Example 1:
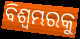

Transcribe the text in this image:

ବିଶ୍ୱମ୍ଭରକୁ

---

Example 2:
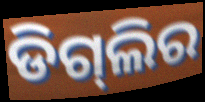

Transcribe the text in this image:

ଡିଗ୍‌ଲିର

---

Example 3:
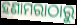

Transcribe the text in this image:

ହଣାମରାଠାରୁ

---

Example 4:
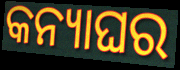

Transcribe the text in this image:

କନ୍ୟାଘର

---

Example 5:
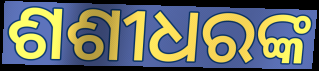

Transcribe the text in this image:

ଶଶୀଧରଙ୍କ